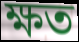
ক্ষত